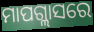
ମାପଗ୍ଲାସରେ